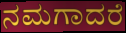
ನಮಗಾದರೆ